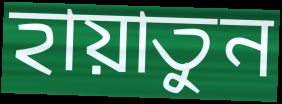
হায়াতুন